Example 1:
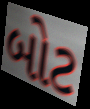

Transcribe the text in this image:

બોટ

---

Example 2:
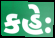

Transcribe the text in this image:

કહેઃ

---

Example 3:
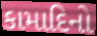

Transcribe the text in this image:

કામાદિનો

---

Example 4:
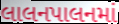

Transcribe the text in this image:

લાલનપાલનમાં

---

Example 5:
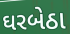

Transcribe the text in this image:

ઘરબેઠા